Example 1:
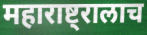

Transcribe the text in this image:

महाराष्ट्रालाच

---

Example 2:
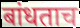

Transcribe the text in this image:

बांधताच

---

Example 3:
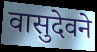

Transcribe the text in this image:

वासुदेवने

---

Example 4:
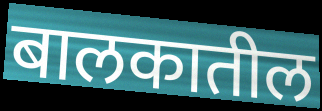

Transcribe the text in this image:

बालकातील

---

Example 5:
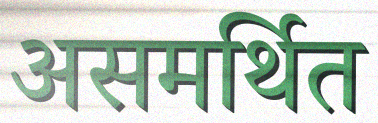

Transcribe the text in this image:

असमर्थित